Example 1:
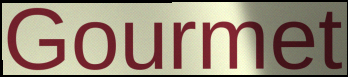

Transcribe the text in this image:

Gourmet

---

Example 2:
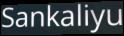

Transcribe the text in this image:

Sankaliyu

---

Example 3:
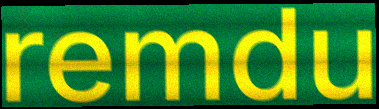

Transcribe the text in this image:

remdu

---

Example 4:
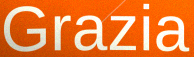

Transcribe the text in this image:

Grazia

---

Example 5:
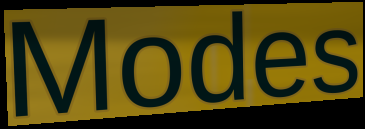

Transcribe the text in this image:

Modes